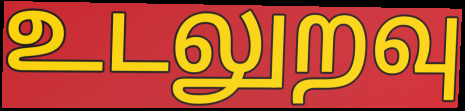
உடலுறவு